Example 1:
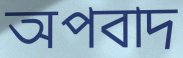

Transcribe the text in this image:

অপবাদ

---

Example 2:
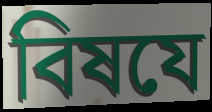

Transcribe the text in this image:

বিষযে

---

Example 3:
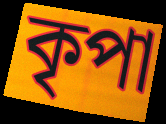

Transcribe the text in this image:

কৃপা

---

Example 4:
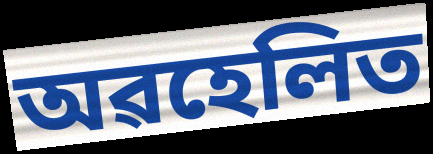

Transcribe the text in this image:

অৱহেলিত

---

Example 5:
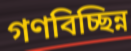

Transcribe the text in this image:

গণবিচ্ছিন্ন